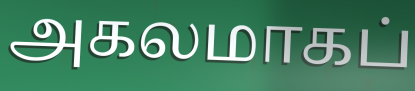
அகலமாகப்